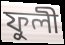
ফুলী